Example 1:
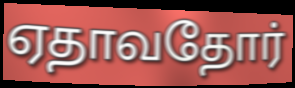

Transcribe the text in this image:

ஏதாவதோர்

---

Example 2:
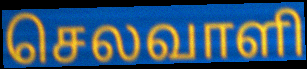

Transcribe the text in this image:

செலவாளி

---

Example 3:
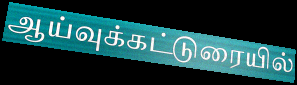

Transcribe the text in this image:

ஆய்வுக்கட்டுரையில்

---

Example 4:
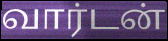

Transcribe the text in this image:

வார்டன்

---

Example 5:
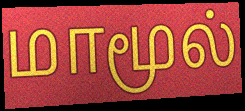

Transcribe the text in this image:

மாமூல்